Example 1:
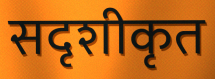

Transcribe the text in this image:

सदृशीकृत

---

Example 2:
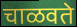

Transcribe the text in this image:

चाळवते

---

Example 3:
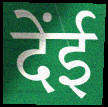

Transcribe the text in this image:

देंई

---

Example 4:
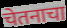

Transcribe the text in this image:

चेतनाचा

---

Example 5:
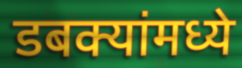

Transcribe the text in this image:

डबक्यांमध्ये